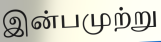
இன்பமுற்று